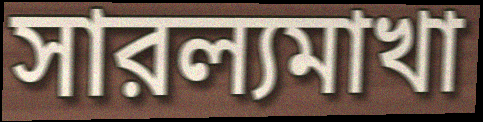
সারল্যমাখা